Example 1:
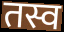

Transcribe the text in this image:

तस्व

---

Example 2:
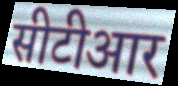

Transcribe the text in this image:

सीटीआर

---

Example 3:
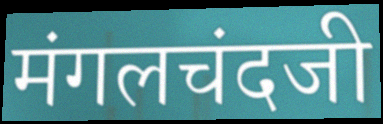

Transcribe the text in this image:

मंगलचंदजी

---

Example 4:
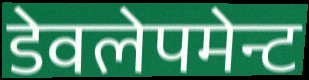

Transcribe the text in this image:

डेवलेपमेन्ट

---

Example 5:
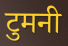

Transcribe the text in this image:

टुमनी